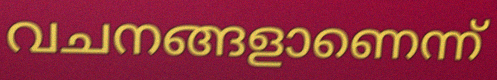
വചനങ്ങളാണെന്ന്